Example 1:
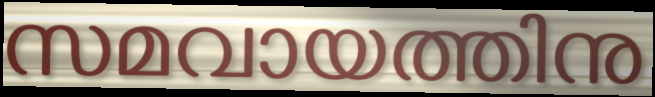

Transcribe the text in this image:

സമവായത്തിനു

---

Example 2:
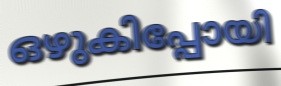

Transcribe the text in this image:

ഒഴുകിപ്പോയി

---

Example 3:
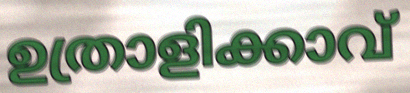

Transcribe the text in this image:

ഉത്രാളിക്കാവ്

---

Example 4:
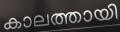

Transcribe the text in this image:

കാലത്തായി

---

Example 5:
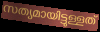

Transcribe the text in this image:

സത്യമായിട്ടുള്ളത്